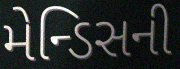
મેન્ડિસની